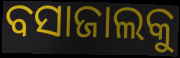
ବସାଜାଲକୁ